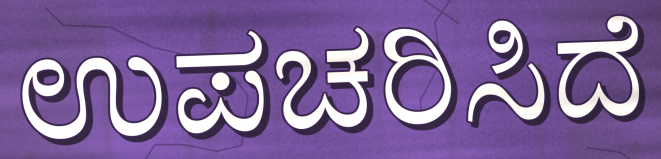
ಉಪಚರಿಸಿದೆ